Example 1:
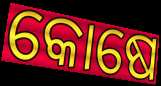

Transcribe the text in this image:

କୋଷେ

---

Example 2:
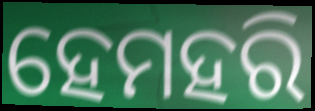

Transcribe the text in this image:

ହେମହରି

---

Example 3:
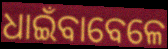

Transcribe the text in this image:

ଧାଇଁବାବେଳେ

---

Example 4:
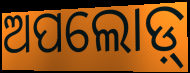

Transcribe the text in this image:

ଅପଲୋଡ଼୍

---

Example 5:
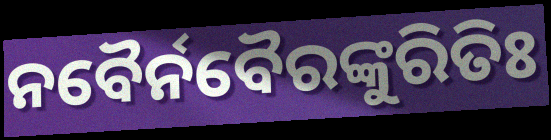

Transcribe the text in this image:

ନବୈର୍ନବୈରଙ୍କୁରିତିଃ